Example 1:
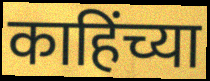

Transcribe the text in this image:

काहिंच्या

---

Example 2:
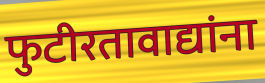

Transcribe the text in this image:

फुटीरतावाद्यांना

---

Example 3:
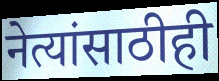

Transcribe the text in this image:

नेत्यांसाठीही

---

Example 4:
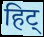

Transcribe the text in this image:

हिट्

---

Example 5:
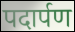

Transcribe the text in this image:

पदार्पण